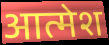
आत्मेश